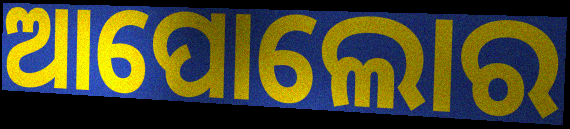
ଆପୋଲୋର